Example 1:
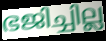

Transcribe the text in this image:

ഭജിച്ചില്ല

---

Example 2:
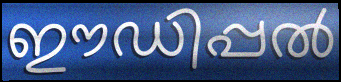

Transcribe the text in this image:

ഈഡിപ്പൽ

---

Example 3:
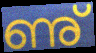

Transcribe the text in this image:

ണു്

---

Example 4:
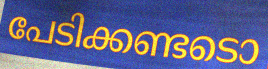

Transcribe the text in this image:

പേടിക്കണ്ടടൊ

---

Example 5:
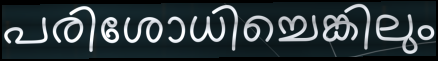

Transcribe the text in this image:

പരിശോധിച്ചെങ്കിലും